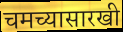
चमच्यासारखी